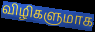
விழிகளுமாக